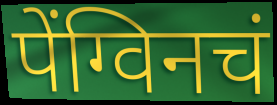
पेंग्विनचं